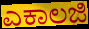
ಎಕಾಲಜಿ